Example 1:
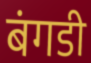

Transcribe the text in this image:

बंगडी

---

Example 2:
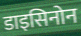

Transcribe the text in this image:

डाइसिनोन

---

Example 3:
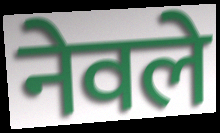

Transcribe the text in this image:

नेवले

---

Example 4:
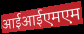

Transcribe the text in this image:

आईआईएमएम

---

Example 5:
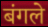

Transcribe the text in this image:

बंगले